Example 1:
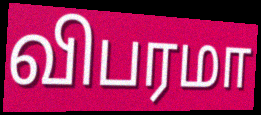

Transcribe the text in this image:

விபரமா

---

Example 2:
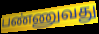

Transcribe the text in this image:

பண்ணுவது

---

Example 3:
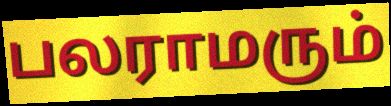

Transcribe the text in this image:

பலராமரும்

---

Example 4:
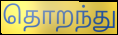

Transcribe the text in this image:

தொறந்து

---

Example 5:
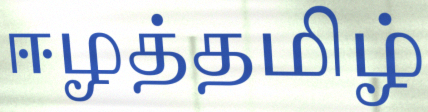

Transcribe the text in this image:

ஈழத்தமிழ்